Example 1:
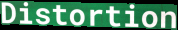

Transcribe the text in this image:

Distortion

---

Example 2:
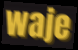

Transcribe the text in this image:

waje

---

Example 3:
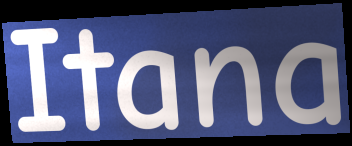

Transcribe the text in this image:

Itana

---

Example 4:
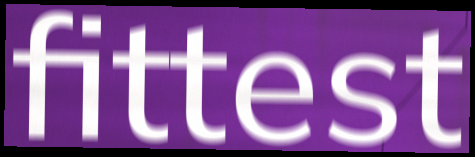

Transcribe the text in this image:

fittest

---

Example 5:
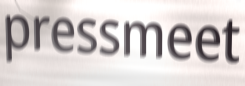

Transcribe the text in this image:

pressmeet